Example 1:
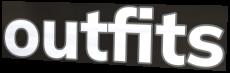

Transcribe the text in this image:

outfits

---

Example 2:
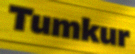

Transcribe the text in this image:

Tumkur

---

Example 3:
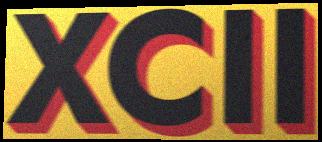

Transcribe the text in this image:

XCII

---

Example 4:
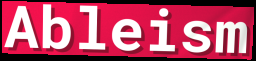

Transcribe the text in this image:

Ableism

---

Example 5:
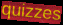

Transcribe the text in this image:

quizzes